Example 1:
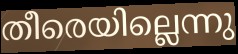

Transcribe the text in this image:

തീരെയില്ലെന്നു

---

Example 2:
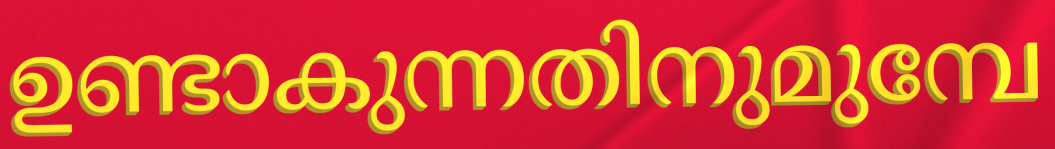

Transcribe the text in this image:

ഉണ്ടാകുന്നതിനുമുമ്പേ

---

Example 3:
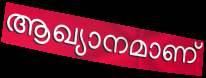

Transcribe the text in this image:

ആഖ്യാനമാണ്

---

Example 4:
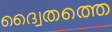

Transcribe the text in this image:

ദ്വൈതത്തെ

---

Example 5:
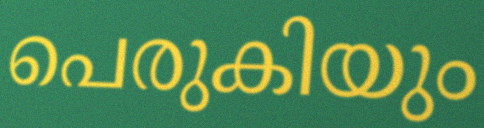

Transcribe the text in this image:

പെരുകിയും